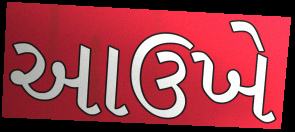
આઉખે